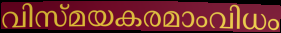
വിസ്മയകരമാംവിധം